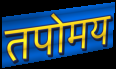
तपोमय